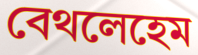
বেথলেহেম